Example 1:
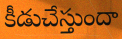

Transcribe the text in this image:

కీడుచేస్తుందా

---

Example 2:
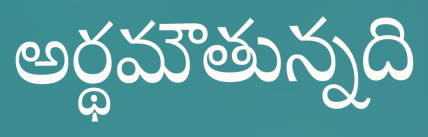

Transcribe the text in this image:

అర్థమౌతున్నది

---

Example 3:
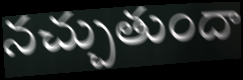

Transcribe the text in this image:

నచ్చుతుందా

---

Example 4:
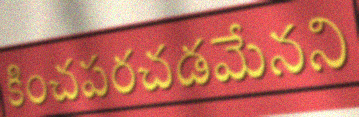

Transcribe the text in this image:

కించపరచడమేనని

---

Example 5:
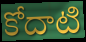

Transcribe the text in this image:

కోదాటి